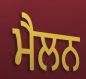
ਮੈਲਨ